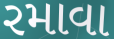
રમાવા